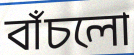
বাঁচলো